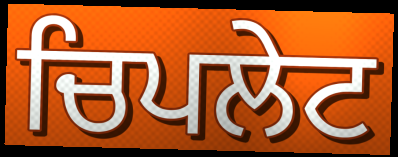
ਚਿਪਲੇਟ